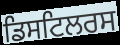
ਡਿਸਟਿਲਰਸ